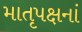
માતૃપક્ષનાં